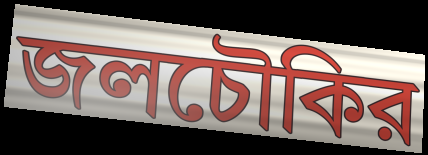
জলচৌকির